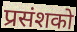
प्रसंशको